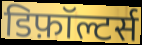
डिफ़ॉल्टर्स